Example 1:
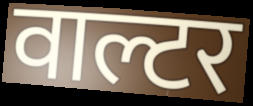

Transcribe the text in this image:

वाल्टर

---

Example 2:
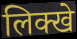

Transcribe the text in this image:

लिक्खे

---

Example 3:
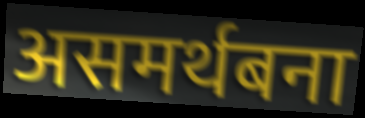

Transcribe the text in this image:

असमर्थबना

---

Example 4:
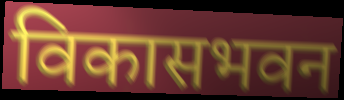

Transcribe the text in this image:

विकासभवन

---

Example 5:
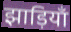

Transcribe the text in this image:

झाड़ियाँ